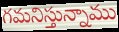
గమనిస్తున్నాము